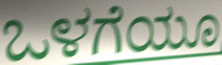
ಒಳಗೆಯೂ